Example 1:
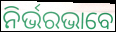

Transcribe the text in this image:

ନିର୍ଭରଭାବେ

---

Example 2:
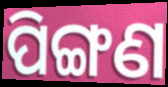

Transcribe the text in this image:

ପିଙ୍ଗଣ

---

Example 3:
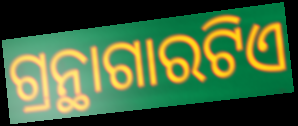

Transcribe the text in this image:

ଗ୍ରନ୍ଥାଗାରଟିଏ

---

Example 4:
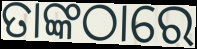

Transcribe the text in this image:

ତାଙ୍କଠାରେ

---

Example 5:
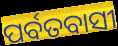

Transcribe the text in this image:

ପର୍ବତବାସୀ